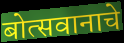
बोत्सवानाचे